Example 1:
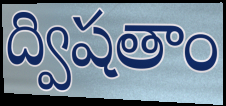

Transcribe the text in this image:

ద్విషతాం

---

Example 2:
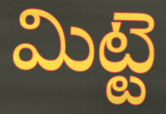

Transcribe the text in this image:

మిట్టె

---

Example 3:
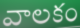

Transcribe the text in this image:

వాలకం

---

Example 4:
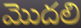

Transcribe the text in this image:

మొదలి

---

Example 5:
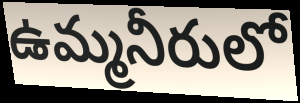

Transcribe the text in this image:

ఉమ్మనీరులో